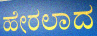
ಹೇರಲಾದ